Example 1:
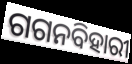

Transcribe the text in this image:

ଗଗନବିହାରୀ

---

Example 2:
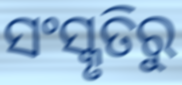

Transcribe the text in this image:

ସଂସ୍କୃତିରୁ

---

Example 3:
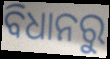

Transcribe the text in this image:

ବିଧାନରୁ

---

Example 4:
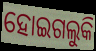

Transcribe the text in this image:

ହୋଇଗଲୁକି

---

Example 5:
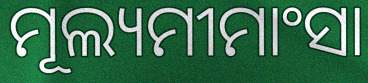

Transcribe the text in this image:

ମୂଲ୍ୟମୀମାଂସା